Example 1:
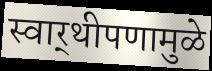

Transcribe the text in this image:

स्वार्थीपणामुळे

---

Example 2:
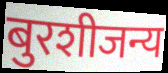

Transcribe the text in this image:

बुरशीजन्य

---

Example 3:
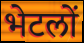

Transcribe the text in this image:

भेटलों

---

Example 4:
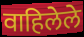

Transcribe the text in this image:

वाहिलेले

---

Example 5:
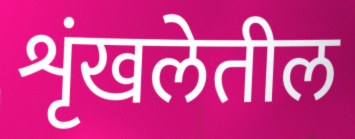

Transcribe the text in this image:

शृंखलेतील